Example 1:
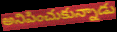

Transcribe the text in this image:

అనిపించుకున్నాడు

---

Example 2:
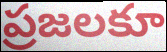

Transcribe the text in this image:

ప్రజలకూ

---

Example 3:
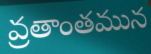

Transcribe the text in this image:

వ్రతాంతమున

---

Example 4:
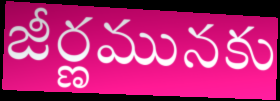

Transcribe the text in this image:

జీర్ణమునకు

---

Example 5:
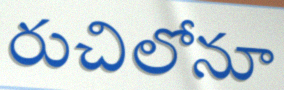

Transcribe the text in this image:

రుచిలోనూ